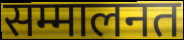
सम्मालनत